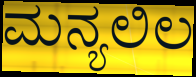
ಮನ್ಯಲಿಲ